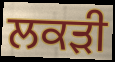
ਲਕੜੀ